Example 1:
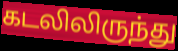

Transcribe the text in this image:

கடலிலிருந்து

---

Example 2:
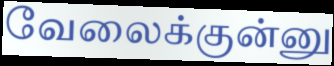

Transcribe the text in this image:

வேலைக்குன்னு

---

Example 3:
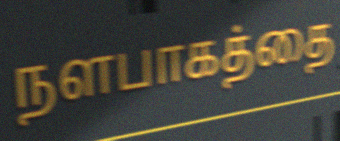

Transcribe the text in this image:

நளபாகத்தை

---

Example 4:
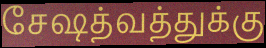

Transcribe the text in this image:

சேஷத்வத்துக்கு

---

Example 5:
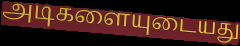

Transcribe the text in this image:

அடிகளையுடையது